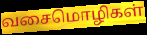
வசைமொழிகள்